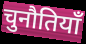
चुनौतियॉं